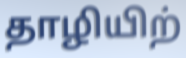
தாழியிற்